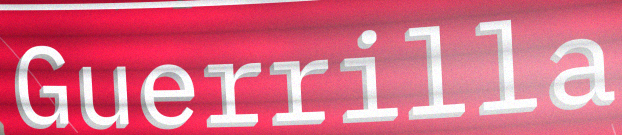
Guerrilla